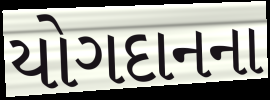
યોગદાનના